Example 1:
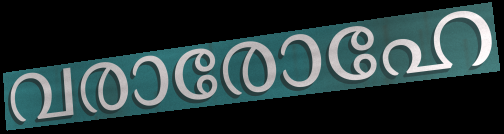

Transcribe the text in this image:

വരാരോഹേ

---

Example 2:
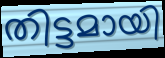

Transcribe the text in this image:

തിട്ടമായി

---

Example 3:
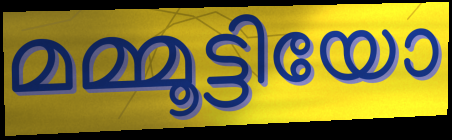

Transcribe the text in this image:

മമ്മൂട്ടിയോ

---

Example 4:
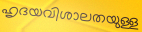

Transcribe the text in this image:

ഹൃദയവിശാലതയുള്ള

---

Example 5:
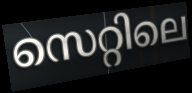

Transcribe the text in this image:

സെറ്റിലെ